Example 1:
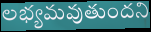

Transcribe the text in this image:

లభ్యమవుతుందని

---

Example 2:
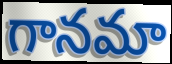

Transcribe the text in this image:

గానమా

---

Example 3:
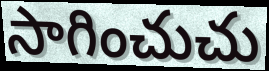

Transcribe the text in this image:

సాగించుచు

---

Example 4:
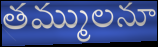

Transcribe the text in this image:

తమ్ములనూ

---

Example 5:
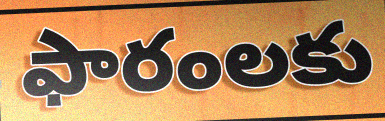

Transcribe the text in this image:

ఫారంలకు